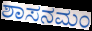
ಶಾಸನಮಂ